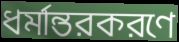
ধর্মান্তরকরণে